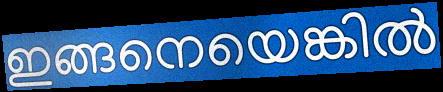
ഇങ്ങനെയെങ്കിൽ